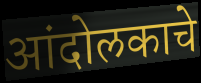
आंदोलकाचे